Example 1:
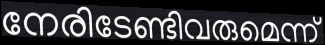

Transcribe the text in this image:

നേരിടേണ്ടിവരുമെന്ന്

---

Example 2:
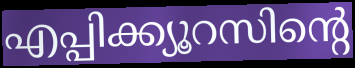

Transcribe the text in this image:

എപ്പിക്ക്യൂറസിന്റെ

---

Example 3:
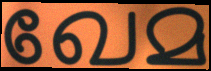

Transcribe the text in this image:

ഖേമ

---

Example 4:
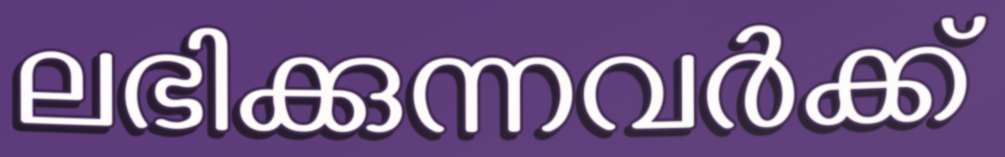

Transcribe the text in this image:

ലഭിക്കുന്നവർക്ക്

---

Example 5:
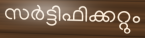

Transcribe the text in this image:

സർട്ടിഫിക്കറ്റും